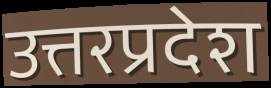
उत्तरप्रदेश